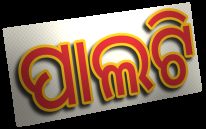
ପାଲଟି